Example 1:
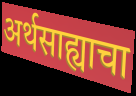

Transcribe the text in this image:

अर्थसाह्याचा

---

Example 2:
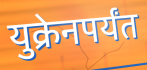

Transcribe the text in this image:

युक्रेनपर्यंत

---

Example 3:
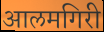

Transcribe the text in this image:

आलमगिरी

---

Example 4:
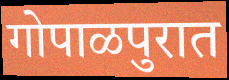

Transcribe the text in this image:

गोपाळपुरात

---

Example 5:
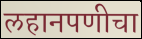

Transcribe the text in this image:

लहानपणीचा